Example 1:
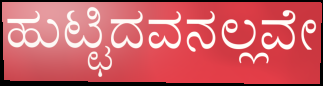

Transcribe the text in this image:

ಹುಟ್ಟಿದವನಲ್ಲವೇ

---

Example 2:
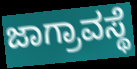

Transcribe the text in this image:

ಜಾಗ್ರಾವಸ್ಥೆ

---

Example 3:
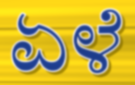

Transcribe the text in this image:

ಏಳೆ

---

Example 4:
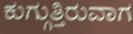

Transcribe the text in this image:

ಕುಗ್ಗುತ್ತಿರುವಾಗ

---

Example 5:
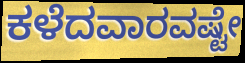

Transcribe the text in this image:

ಕಳೆದವಾರವಷ್ಟೇ